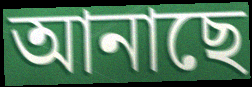
আনাছে